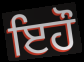
ਇਹੌ